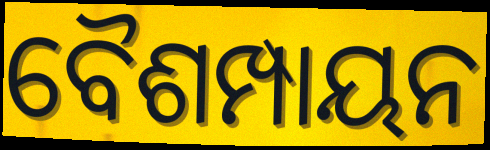
ବୈଶମ୍ପାୟନ